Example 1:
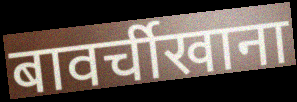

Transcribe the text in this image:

बावर्चीखाना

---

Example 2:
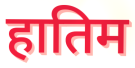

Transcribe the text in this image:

हातिम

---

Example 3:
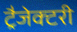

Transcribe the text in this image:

ट्रैजेक्‍टरी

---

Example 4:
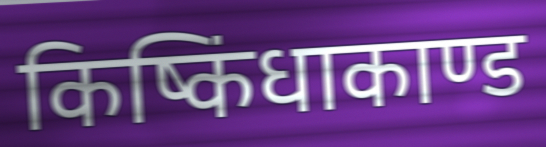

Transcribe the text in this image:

किष्किंधाकाण्ड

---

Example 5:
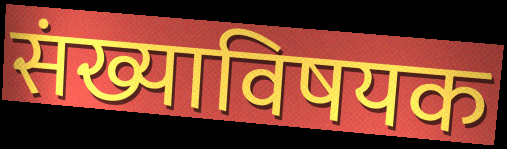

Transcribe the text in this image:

संख्याविषयक